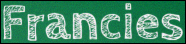
Francies